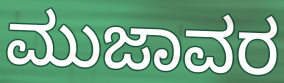
ಮುಜಾವರ